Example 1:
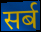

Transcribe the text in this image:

सर्ब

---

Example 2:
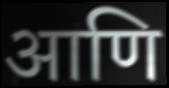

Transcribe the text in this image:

आणि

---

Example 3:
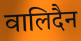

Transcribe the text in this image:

वालिदैन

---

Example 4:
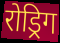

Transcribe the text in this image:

रोड्रिग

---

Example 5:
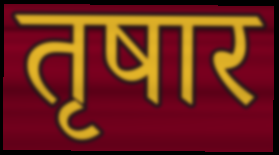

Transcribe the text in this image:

तृषार